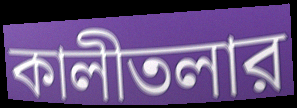
কালীতলার